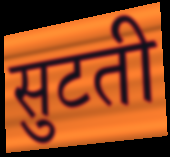
सुटती